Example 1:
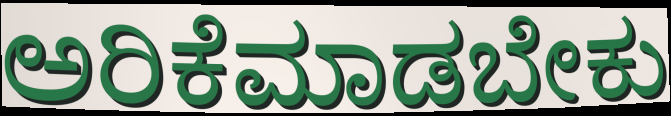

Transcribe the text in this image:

ಅರಿಕೆಮಾಡಬೇಕು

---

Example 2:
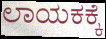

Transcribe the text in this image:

ಲಾಯಕಕ್ಕೆ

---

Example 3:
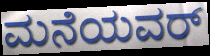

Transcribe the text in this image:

ಮನೆಯವರ್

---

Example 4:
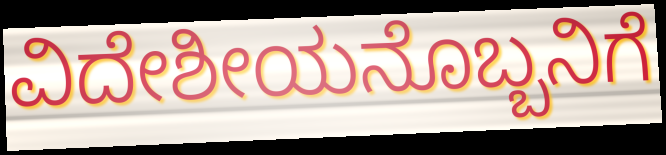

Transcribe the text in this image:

ವಿದೇಶೀಯನೊಬ್ಬನಿಗೆ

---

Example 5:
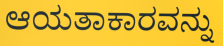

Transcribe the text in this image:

ಆಯತಾಕಾರವನ್ನು